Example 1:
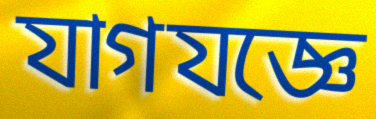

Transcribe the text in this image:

যাগযজ্ঞে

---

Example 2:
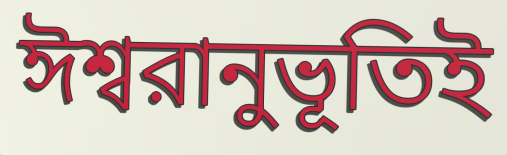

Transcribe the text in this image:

ঈশ্বরানুভূতিই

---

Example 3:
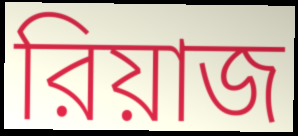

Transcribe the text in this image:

রিয়াজ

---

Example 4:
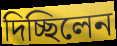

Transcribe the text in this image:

দিচ্ছিলেন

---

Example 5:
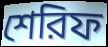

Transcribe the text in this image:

শেরিফ